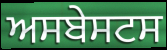
ਅਸਬੇਸਟਸ